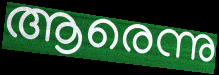
ആരെന്നു